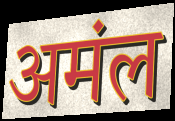
अमंल